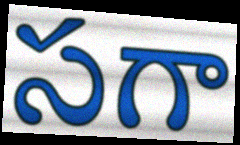
సగా